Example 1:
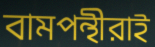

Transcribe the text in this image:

বামপন্থীরাই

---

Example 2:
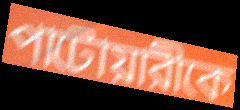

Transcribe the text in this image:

পাটোয়ারীকে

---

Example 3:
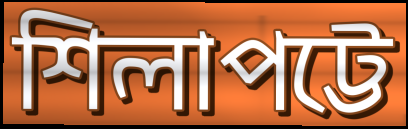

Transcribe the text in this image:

শিলাপট্টে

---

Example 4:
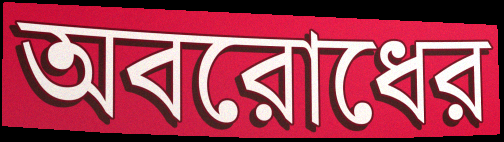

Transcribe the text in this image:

অবরোধের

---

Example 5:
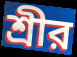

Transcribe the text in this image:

শ্রীর